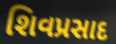
શિવપ્રસાદ